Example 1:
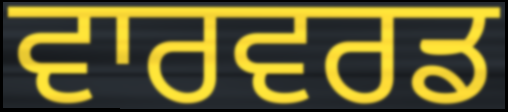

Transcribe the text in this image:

ਵਾਰਵਰਡ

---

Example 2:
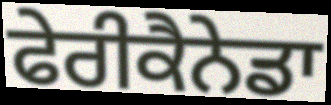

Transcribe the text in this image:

ਫੇਰੀਕੈਨੇਡਾ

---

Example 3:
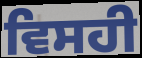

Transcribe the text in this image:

ਵਿਸਹੀ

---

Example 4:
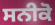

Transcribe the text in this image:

ਸਨੀਕੋ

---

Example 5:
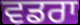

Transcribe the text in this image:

ਵਡਰਾ